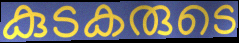
കുടകരുടെ